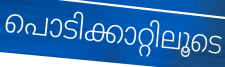
പൊടിക്കാറ്റിലൂടെ